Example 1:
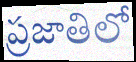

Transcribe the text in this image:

ప్రజాతిలో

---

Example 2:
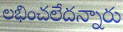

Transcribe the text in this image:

లభించలేదన్నారు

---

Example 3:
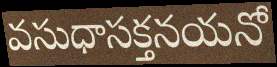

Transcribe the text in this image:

వసుధాసక్తనయనో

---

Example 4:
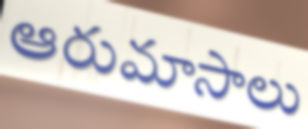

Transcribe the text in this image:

ఆరుమాసాలు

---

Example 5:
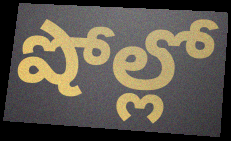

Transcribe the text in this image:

షోల్లో